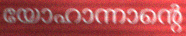
യോഹാന്നാന്റെ